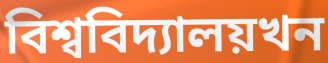
বিশ্ববিদ্যালয়খন